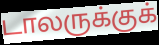
டாலருக்குக்